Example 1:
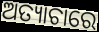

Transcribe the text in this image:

ଅତ୍ୟାଚାରେ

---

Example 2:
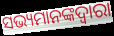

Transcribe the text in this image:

ସଭ୍ୟମାନଙ୍କଦ୍ୱାରା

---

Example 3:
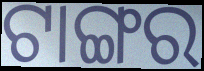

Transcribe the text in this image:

ଟାଙ୍ଗର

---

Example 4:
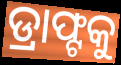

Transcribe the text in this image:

ଡ୍ରାଫ୍ଟକୁ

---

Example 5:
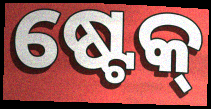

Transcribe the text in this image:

ଷ୍ଟେକ୍